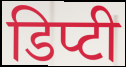
डिप्टी